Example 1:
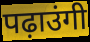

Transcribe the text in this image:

पढ़ाउंगी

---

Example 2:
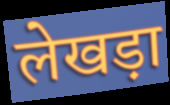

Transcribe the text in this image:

लेखड़ा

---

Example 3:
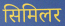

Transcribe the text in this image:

सिमिलर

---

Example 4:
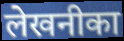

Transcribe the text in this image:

लेखनीका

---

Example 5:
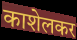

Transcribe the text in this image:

काशेलकर